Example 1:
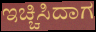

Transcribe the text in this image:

ಇಚ್ಚಿಸಿದಾಗ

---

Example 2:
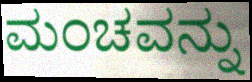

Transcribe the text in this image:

ಮಂಚವನ್ನು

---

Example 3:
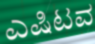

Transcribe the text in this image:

ಎಷಿಟವ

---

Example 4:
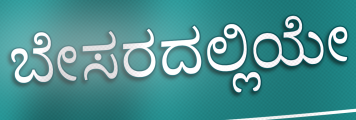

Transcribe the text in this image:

ಬೇಸರದಲ್ಲಿಯೇ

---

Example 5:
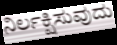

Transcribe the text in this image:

ನಿರ್ಲಕ್ಷಿಸುವುದು